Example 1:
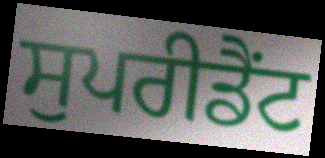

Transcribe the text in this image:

ਸੁਪਰੀਡੈਂਟ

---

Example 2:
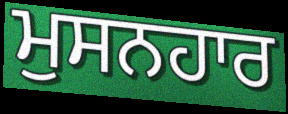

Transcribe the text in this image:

ਮੁਸਨਹਾਰ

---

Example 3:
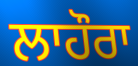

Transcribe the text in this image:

ਲਾਹੌਰਾ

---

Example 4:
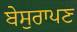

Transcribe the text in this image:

ਬੇਸੁਰਾਪਣ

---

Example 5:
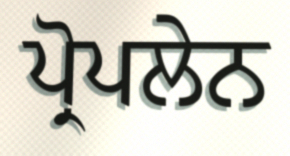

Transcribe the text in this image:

ਪ੍ਰੋਪਲੇਨ